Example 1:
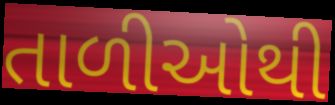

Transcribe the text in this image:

તાળીઓથી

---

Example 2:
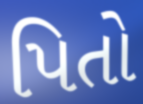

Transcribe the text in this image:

પિતો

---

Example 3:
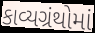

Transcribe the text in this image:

કાવ્યગ્રંથોમાં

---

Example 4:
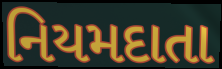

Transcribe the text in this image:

નિયમદાતા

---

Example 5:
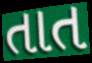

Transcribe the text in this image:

તાત